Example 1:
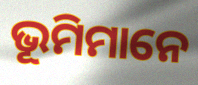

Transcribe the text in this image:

ଭୂମିମାନେ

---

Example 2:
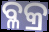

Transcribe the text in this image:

ବ୍ଳକ୍ର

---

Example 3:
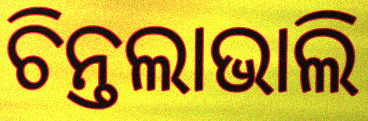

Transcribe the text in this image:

ଚିନ୍ତଲାଭାଲି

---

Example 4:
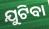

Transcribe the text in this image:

ଯୁଟିବା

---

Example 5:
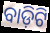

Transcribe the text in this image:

ବାଡ଼ିଟି